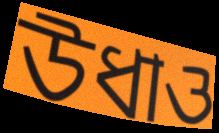
উধাও